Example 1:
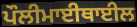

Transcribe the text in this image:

ਪੌਲੀਮਾਈਥਾਈਲ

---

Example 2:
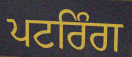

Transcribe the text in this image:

ਪਟਰਿੰਗ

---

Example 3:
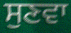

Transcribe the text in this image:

ਸੁਣਵਾ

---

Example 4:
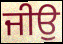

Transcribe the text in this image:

ਜੀਉ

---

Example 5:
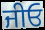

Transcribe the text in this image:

ਜੀਓ